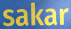
sakar